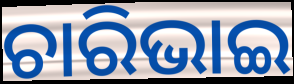
ଚାରିଭାଇ